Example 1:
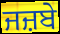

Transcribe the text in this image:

ਜਜ਼ਬੇ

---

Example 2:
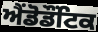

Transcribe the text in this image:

ਐਂਡੋਡੌਂਟਿਕ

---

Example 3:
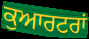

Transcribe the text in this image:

ਕੁਆਰਟਰਾਂ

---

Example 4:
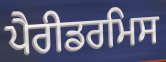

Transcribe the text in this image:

ਪੈਰੀਡਰਮਿਸ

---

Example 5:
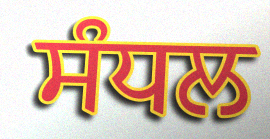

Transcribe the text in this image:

ਸੰਧਲ